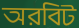
অরবিট